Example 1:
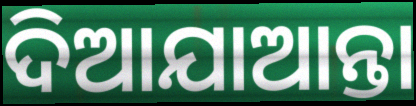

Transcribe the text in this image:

ଦିଆଯାଆନ୍ତା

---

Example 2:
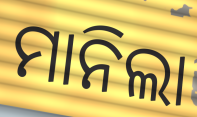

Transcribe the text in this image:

ମାନିଲା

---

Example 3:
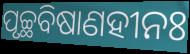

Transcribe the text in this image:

ପୃଚ୍ଛବିଷାଣହୀନଃ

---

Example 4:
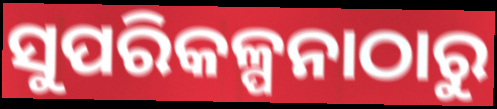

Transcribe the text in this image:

ସୁପରିକଳ୍ପନାଠାରୁ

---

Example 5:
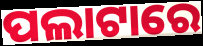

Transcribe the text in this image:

ପଲାଟାରେ